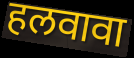
हलवावा